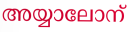
അയ്യാലോന്